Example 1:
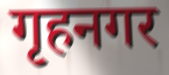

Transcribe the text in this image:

गृहनगर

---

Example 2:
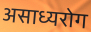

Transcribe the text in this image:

असाध्यरोग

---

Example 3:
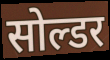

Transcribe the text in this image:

सोल्डर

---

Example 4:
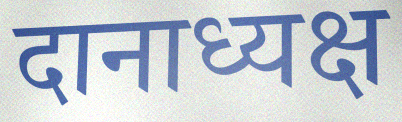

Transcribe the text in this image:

दानाध्यक्ष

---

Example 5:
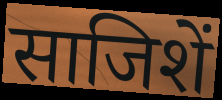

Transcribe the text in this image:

साजिशें